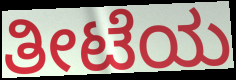
ತೀಟೆಯ